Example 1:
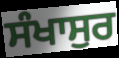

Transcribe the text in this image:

ਸੰਖਾਸੁਰ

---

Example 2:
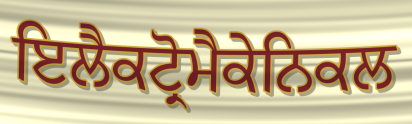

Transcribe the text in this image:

ਇਲੈਕਟ੍ਰੋਮੈਕੇਨਿਕਲ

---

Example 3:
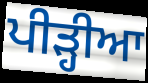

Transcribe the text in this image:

ਪੀੜ੍ਹੀਆ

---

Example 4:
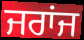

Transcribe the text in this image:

ਜਰਾਂਜ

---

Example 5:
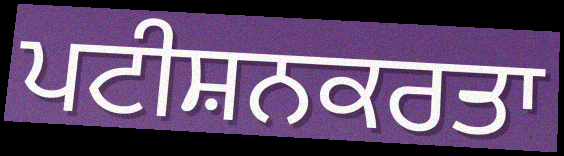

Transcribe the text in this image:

ਪਟੀਸ਼ਨਕਰਤਾ